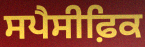
ਸਪੈਸੀਫ਼ਿਕ